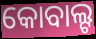
କୋବାଲ୍ଟ